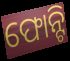
ଫୋନ୍ଟି